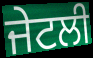
ਜੇਟਲੀ